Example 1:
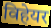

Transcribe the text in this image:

विहेयर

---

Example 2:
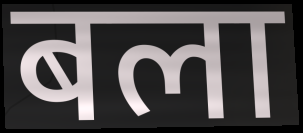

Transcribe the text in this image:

बला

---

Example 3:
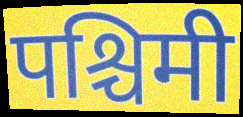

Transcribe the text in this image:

पश्चिमी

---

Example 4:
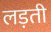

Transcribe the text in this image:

लड़ती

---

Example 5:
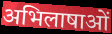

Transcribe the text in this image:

अभिलाषाओं